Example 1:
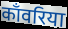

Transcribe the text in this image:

काँवरिया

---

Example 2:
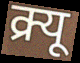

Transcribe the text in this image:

क्र्यू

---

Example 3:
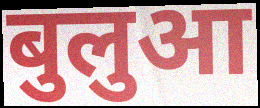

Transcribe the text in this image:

बुलुआ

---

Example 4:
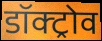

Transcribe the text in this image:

डॉक्ट्रोव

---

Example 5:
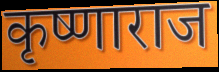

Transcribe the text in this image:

कृष्णाराज